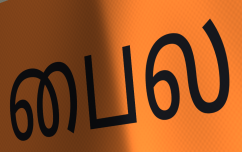
பைல